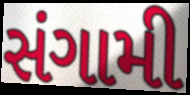
સંગામી